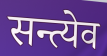
सन्त्येव